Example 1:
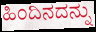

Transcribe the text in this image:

ಹಿಂದಿನದನ್ನು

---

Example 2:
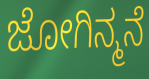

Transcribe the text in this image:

ಜೋಗಿನ್ಮನೆ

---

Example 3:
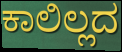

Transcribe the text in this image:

ಕಾಲಿಲ್ಲದ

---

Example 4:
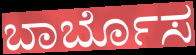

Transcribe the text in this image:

ಬಾರ್ಬೊಸ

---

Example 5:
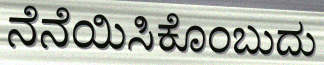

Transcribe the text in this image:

ನೆನೆಯಿಸಿಕೊಂಬುದು